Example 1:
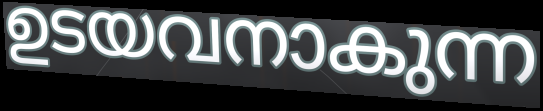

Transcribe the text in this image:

ഉടയവനാകുന്ന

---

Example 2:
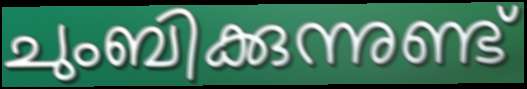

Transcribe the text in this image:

ചുംബിക്കുന്നുണ്ട്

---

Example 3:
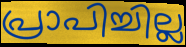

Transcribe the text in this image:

പ്രാപിച്ചില്ല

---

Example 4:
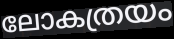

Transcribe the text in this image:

ലോകത്രയം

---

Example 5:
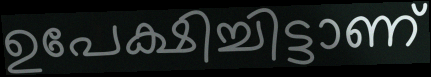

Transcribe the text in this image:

ഉപേക്ഷിച്ചിട്ടാണ്